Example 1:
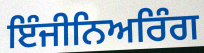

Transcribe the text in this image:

ਇੰਜੀਨਿਅਰਿੰਗ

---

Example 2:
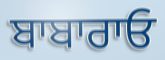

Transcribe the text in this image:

ਬਾਬਾਰਾਓ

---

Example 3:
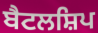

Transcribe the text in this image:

ਬੈਟਲਸ਼ਿਪ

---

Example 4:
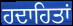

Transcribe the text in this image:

ਹਦਾਹਿਤਾਂ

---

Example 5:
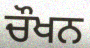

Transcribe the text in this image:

ਚੌਖਨ